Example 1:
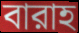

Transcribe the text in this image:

বারাহ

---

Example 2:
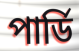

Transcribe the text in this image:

পার্ডি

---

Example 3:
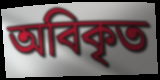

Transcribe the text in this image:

অবিকৃত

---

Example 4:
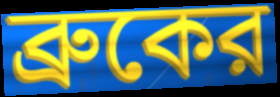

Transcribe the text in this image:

ব্রুকের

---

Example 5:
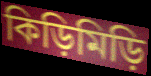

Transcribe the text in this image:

কিড়িমিড়ি